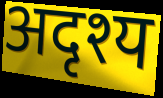
अदृश्य